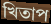
খিতাপ